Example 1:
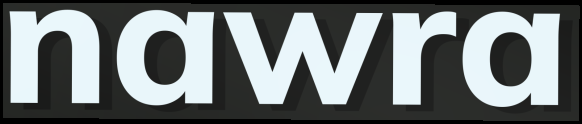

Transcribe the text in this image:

nawra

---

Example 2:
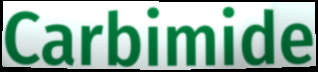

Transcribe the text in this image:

Carbimide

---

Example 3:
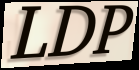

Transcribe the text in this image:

LDP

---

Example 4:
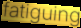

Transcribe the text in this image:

fatiguing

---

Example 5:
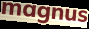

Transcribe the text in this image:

magnus